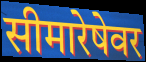
सीमारेषेवर